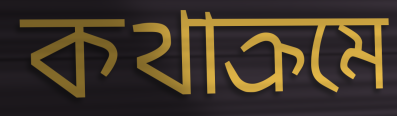
কথাক্রমে